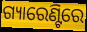
ଗ୍ୟାରେଣ୍ଟିରେ